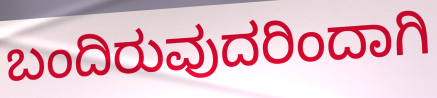
ಬಂದಿರುವುದರಿಂದಾಗಿ